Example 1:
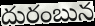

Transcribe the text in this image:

దురంబున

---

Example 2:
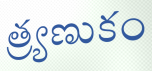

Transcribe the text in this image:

త్ర్యణుకం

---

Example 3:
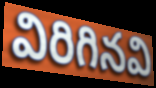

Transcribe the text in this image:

విరిగినవి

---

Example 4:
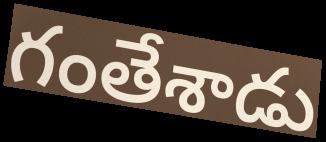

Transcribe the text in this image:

గంతేశాడు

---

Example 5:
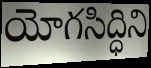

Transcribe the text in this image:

యోగసిద్ధిని